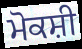
ਮੋਕਸ਼ੀ